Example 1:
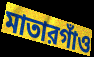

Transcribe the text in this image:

মাতারগাঁও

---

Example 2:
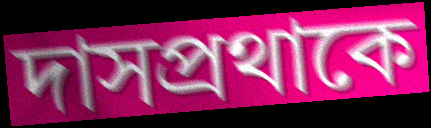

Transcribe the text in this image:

দাসপ্রথাকে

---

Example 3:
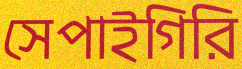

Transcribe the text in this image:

সেপাইগিরি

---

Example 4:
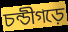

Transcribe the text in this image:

চন্ডীগড়ে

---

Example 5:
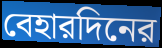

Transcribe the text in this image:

বেহারদিনের